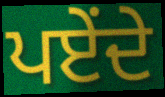
ਪਏਂਦੇ